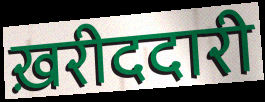
ख़रीददारी